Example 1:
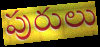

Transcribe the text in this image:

పురులు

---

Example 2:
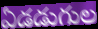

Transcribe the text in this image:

ఏడడుగుల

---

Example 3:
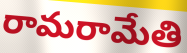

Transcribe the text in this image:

రామరామేతి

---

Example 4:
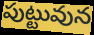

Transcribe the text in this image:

పుట్టువున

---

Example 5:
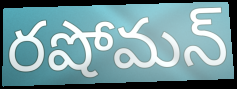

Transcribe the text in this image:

రషోమన్